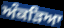
ਅੰਕੜਿਆ